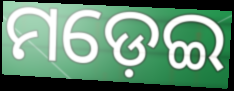
ମଡ଼େଇ